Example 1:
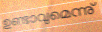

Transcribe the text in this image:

ഉണ്ടാവുമെന്നു്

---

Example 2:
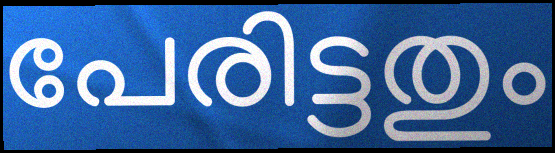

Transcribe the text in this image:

പേരിട്ടതും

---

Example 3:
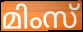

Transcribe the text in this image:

മിംസ്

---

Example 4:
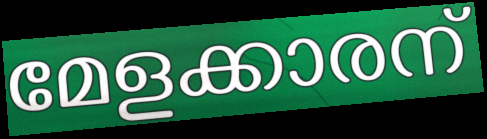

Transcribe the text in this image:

മേളക്കാരന്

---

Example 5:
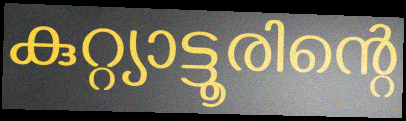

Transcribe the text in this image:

കുറ്റ്യാട്ടൂരിന്റെ